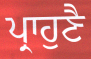
ਪ੍ਰਾਹੁਣੈ